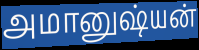
அமானுஷ்யன்